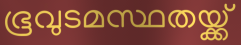
ഭൂവുടമസ്ഥതയ്ക്ക്